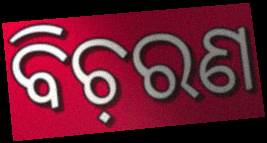
ବିଚ଼ରଣ